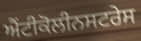
ਐਂਟੀਕੋਲੀਨਸਟਰੇਸ